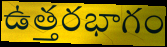
ఉత్తరభాగం